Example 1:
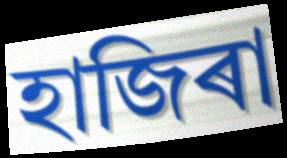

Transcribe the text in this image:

হাজিৰা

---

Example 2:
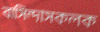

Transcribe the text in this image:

বাসিন্দাসকলক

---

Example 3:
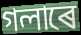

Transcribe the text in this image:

গলাৰে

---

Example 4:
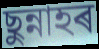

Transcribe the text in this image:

ছুন্নাহৰ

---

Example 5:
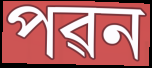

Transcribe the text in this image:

পৱন